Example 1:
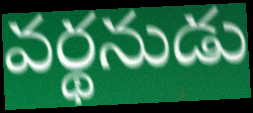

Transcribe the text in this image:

వర్థనుడు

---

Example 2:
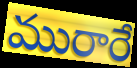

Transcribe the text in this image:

మురారే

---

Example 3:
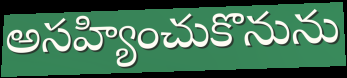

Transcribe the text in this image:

అసహ్యించుకొనును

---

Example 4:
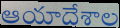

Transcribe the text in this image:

ఆయాదేశాల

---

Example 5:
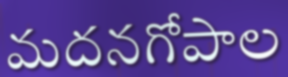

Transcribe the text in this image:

మదనగోపాల